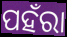
ପହଁରା